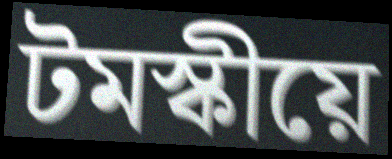
টমস্কীয়ে